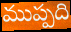
ముప్పది